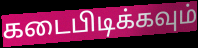
கடைபிடிக்கவும்